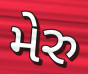
મેરુ